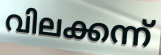
വിലക്കന്ന്